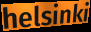
helsinki